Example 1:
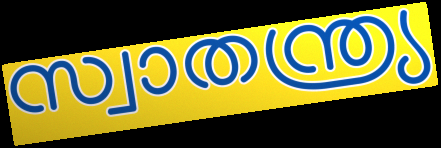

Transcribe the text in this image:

സ്വാതന്ത്ര്യ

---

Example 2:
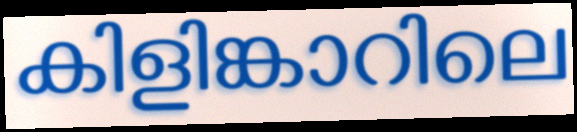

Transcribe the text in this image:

കിളിങ്കാറിലെ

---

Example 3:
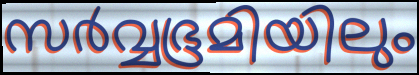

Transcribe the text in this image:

സർവ്വഭൂമിയിലും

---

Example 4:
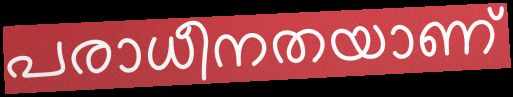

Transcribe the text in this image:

പരാധീനതയാണ്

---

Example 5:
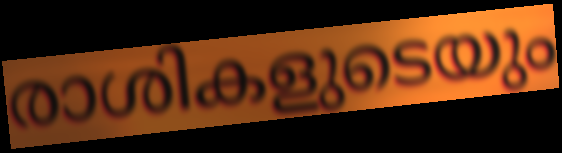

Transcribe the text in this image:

രാശികളുടെയും